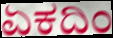
ಏಕದಿಂ